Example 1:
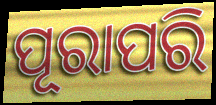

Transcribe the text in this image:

ପୂରାପରି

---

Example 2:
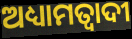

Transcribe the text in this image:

ଅଧ୍ୟାମତ୍ବାଦୀ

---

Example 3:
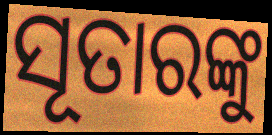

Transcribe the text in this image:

ସୂତାରଙ୍କୁ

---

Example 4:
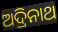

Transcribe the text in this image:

ଅଦ୍ରିନାଥ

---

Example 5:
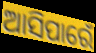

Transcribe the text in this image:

ଆସିପାରେଁ